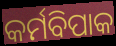
କର୍ମବିପାକ